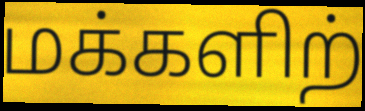
மக்களிற்